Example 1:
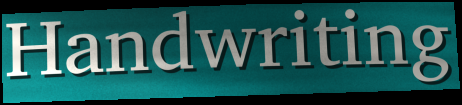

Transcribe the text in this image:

Handwriting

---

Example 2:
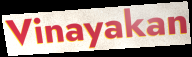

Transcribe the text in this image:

Vinayakan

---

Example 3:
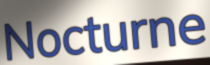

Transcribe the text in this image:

Nocturne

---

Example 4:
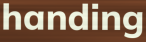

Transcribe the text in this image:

handing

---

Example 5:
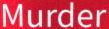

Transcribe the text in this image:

Murder